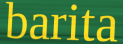
barita